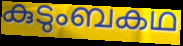
കുടുംബകഥ